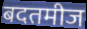
बदतमीज